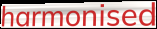
harmonised